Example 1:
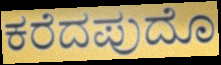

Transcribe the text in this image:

ಕರೆದಪುದೊ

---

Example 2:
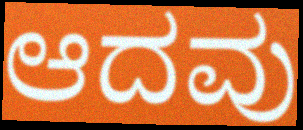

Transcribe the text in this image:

ಆದವು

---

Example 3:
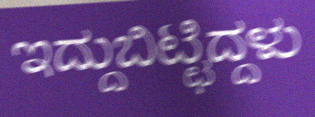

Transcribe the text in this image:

ಇದ್ದುಬಿಟ್ಟಿದ್ದಳು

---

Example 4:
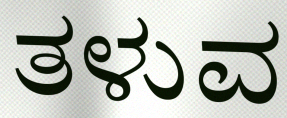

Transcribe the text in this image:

ತಳುವ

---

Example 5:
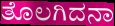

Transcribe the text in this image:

ತೊಲಗಿದನಾ